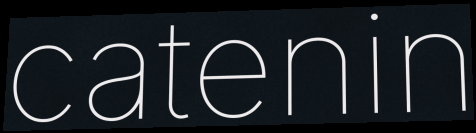
catenin